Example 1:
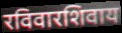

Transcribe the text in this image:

रविवारशिवाय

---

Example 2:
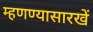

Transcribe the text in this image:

म्हणण्यासारखें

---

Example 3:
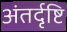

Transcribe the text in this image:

अंतर्दृष्टि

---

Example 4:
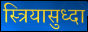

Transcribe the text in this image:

स्त्रियासुध्दा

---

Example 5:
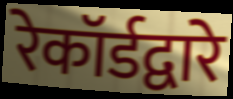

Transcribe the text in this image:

रेकॉर्डद्वारे